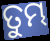
ତୁମ୍ଭ